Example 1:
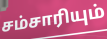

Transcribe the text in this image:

சம்சாரியும்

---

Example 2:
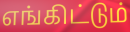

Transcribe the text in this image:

எங்கிட்டும்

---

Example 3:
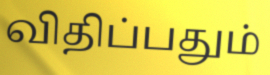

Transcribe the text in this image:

விதிப்பதும்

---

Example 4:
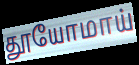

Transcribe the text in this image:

தூயோமாய்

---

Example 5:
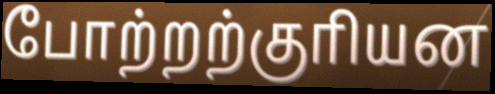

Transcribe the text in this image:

போற்றற்குரியன